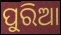
ପୁରିଆ